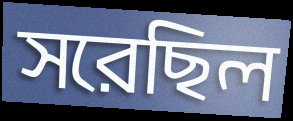
সরেছিল